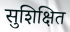
सुशिक्षित